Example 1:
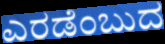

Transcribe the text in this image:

ಎರಡೆಂಬುದ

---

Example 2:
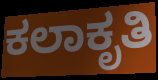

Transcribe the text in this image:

ಕಲಾಕೃತಿ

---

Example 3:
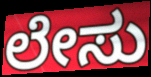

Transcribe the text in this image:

ಲೇಸು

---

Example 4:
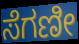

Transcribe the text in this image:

ಸೆಗಣೀ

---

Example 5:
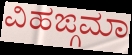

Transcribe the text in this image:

ವಿಹಙ್ಗಮಾ